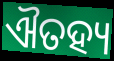
ଐତହ୍ୟ